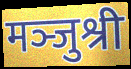
मञ्जुश्री